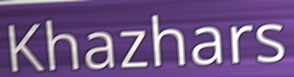
Khazhars